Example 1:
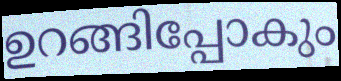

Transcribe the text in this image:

ഉറങ്ങിപ്പോകും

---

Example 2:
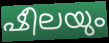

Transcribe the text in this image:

ഷീലയും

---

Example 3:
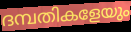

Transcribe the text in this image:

ദമ്പതികളേയും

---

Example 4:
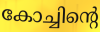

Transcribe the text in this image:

കോച്ചിന്റെ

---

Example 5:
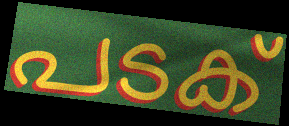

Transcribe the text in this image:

പടക്